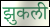
झुकली